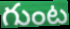
గుంట